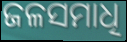
ଜଳସମାଧି